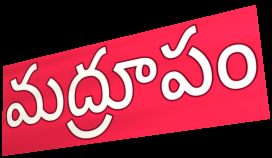
మద్రూపం